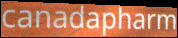
canadapharm